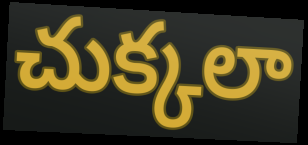
చుక్కలా